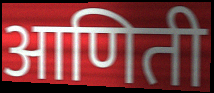
आणिती